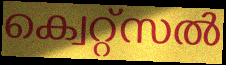
ക്വെറ്റ്സൽ